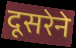
दूसरेने